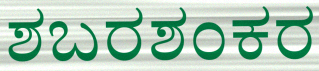
ಶಬರಶಂಕರ